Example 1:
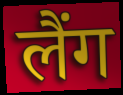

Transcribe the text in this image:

लैंग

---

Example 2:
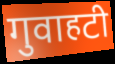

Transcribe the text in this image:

गुवाहटी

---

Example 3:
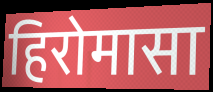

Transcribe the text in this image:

हिरोमासा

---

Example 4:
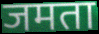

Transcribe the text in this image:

जमता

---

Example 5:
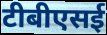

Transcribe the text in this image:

टीबीएसई